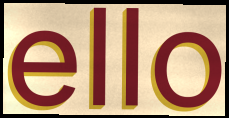
ello